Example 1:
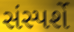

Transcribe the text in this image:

સંસ્પર્શે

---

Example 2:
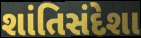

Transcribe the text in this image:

શાંતિસંદેશા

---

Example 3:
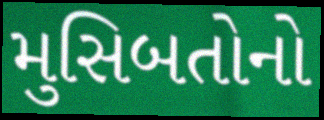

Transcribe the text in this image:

મુસિબતોનો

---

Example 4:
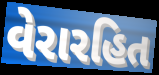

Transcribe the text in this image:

વેરારહિત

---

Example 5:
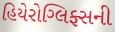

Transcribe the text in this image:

હિયેરોગ્લિફ્સની